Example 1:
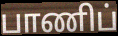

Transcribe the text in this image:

பாணிப்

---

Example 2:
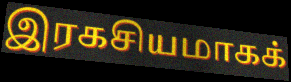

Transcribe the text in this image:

இரகசியமாகக்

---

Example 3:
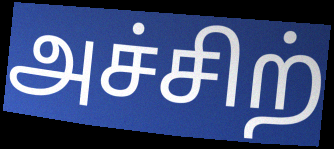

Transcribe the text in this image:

அச்சிற்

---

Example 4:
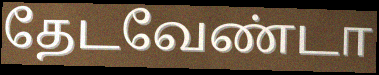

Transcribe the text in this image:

தேடவேண்டா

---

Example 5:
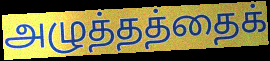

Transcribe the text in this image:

அழுத்தத்தைக்